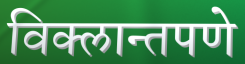
विक्लान्तपणे